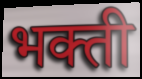
भक्ती